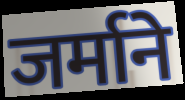
जर्माने